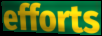
efforts